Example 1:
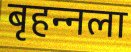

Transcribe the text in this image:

बृहन्नला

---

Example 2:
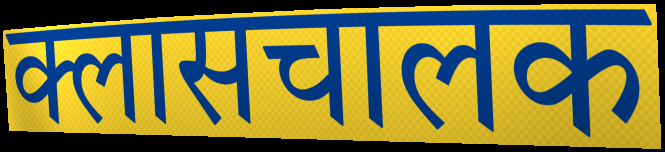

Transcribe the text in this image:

क्‍लासचालक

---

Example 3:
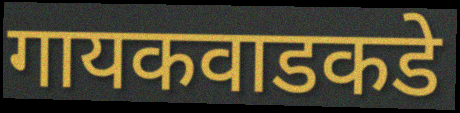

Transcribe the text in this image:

गायकवाडकडे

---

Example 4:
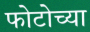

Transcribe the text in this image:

फोटोच्या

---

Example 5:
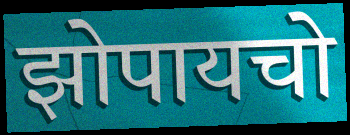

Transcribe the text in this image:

झोपायचो